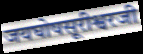
जयघोषसूरीश्वरजी